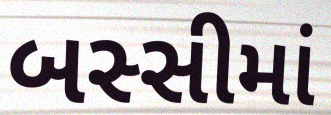
બસ્સીમાં